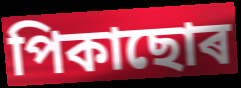
পিকাছোৰ